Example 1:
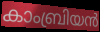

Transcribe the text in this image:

കാംബ്രിയൻ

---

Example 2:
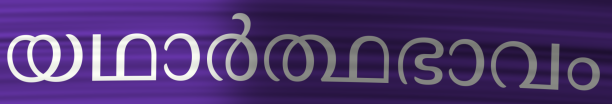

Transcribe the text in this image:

യഥാർത്ഥഭാവം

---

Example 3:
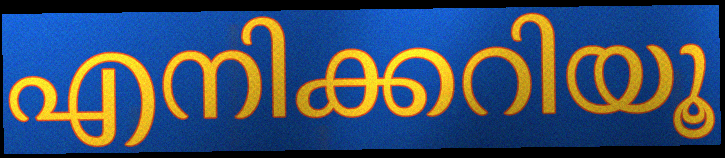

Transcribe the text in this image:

എനിക്കറിയൂ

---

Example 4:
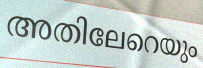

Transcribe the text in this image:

അതിലേറെയും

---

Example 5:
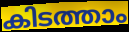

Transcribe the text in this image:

കിടത്താം